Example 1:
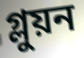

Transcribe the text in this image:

গ্লুয়ন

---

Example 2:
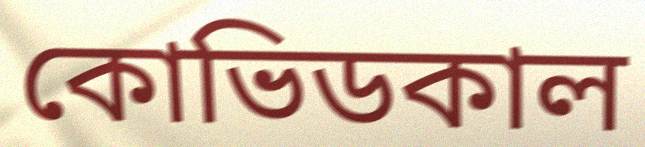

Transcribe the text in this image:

কোভিডকাল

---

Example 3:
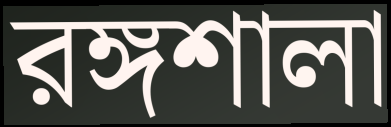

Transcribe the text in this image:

রঙ্গশালা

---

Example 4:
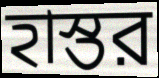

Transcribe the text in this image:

হাস্তর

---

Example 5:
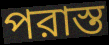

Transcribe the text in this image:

পরাস্ত